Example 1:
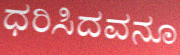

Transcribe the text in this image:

ಧರಿಸಿದವನೂ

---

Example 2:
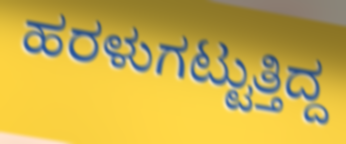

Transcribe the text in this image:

ಹರಳುಗಟ್ಟುತ್ತಿದ್ದ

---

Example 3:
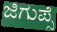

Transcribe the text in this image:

ಜಿಗುಪ್ಸೆ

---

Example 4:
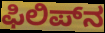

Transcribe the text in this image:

ಫಿಲಿಪ್‌ನ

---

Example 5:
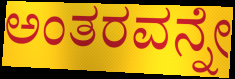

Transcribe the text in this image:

ಅಂತರವನ್ನೇ